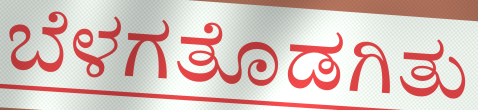
ಬೆಳಗತೊಡಗಿತು